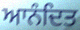
ਆਨੰਦਿਤ